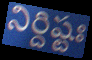
నిర్దిష్టః